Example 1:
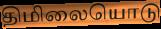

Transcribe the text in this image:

திமிலையொடு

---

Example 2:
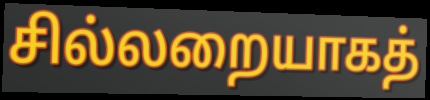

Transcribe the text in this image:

சில்லறையாகத்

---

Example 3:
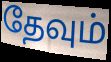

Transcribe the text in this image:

தேவும்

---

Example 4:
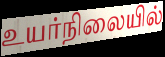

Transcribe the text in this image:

உயர்நிலையில்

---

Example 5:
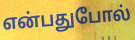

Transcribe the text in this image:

என்பதுபோல்